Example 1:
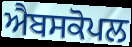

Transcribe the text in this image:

ਐਬਸਕੋਪਲ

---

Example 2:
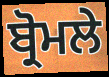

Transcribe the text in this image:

ਬ੍ਰੋਮਲੇ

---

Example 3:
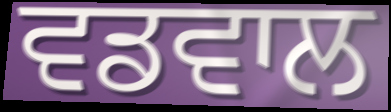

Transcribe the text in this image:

ਵਡਵਾਲ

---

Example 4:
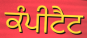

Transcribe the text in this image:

ਕੰਪੀਟੈਟ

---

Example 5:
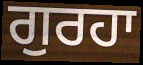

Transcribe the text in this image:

ਗੁਰਹਾ